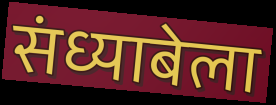
संध्याबेला